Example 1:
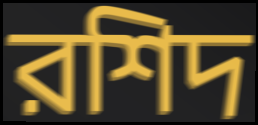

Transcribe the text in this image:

রশিদ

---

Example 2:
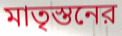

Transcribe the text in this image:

মাতৃস্তনের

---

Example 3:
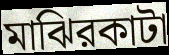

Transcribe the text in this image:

মাঝিরকাটা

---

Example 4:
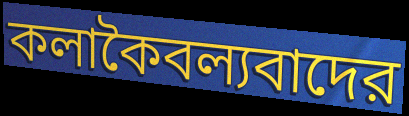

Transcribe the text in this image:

কলাকৈবল্যবাদের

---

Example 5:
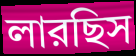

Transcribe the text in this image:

লারছিস